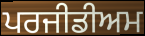
ਪਰਜੀਡੀਅਮ